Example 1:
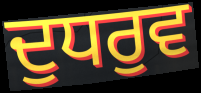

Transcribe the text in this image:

ਦੁਧਰੁਵ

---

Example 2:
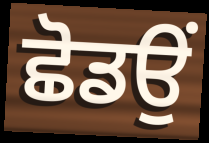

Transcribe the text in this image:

ਛੋਡਉਂ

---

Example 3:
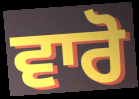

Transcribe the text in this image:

ਵਾਰੋ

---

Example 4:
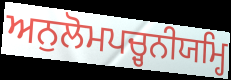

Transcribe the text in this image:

ਅਨੁਲੋਮਪਚ੍ਚਨੀਯਮ੍ਹਿ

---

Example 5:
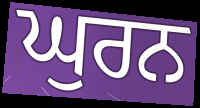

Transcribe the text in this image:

ਘੁਰਨ